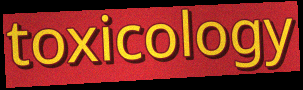
toxicology